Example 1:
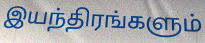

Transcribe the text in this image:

இயந்திரங்களும்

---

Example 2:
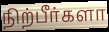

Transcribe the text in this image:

நிற்பீர்களா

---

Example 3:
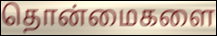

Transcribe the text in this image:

தொன்மைகளை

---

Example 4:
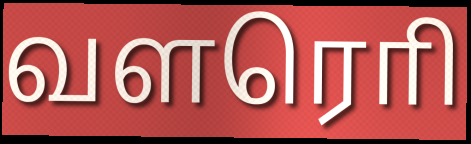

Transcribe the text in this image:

வளரெரி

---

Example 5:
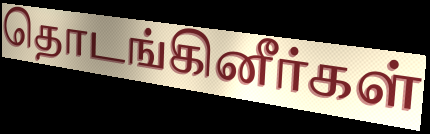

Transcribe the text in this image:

தொடங்கினீர்கள்